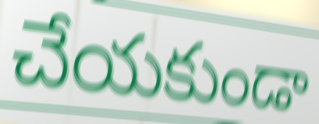
చేయకుండా